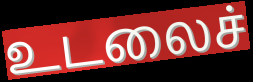
உடலைச்